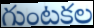
గుంటకల